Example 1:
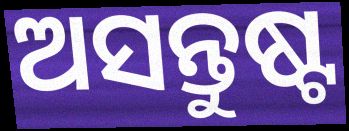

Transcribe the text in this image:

ଅସନ୍ତୁଷ୍ଟ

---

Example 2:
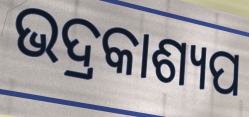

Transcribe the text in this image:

ଭଦ୍ରକାଶ୍ୟପ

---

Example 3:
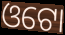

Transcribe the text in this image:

ଓଟୋ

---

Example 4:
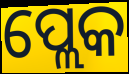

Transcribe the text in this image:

ପ୍ଲେକ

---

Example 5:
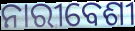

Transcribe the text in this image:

ନାରୀବେଶୀ